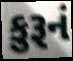
કુરૂનં